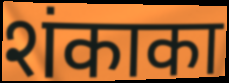
शंकाका